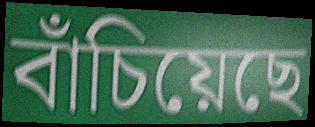
বাঁচিয়েছে